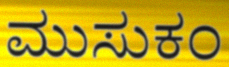
ಮುಸುಕಂ